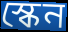
স্কেন